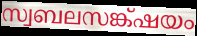
സ്വബലസങ്ക്ഷയം